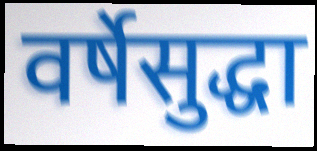
वर्षेसुद्धा